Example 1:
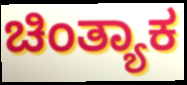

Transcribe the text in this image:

ಚಿಂತ್ಯಾಕ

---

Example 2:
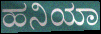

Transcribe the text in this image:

ಹನಿಯಾ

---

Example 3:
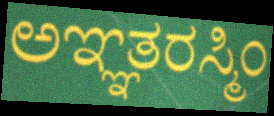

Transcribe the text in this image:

ಅಞ್ಞತರಸ್ಮಿಂ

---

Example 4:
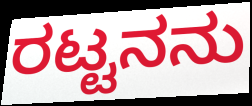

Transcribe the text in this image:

ರಟ್ಟನನು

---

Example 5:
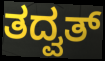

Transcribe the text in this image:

ತದ್ವತ್